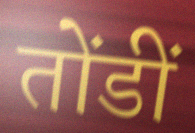
तोंडीं